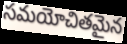
సమయోచితమైన